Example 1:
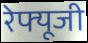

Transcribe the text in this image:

रेफ्यूजी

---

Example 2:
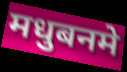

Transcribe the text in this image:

मधुबनमे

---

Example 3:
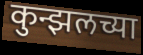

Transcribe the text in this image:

कुन्झलच्या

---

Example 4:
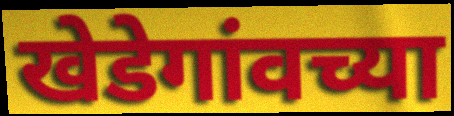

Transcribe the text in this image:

खेडेगांवच्या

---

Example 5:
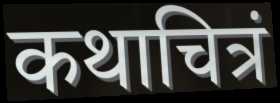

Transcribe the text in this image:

कथाचित्रं